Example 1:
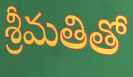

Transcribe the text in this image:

శ్రీమతితో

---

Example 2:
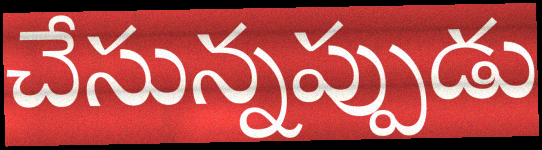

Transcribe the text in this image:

చేసున్నప్పుడు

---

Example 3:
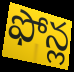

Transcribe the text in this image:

ఫోన్ల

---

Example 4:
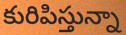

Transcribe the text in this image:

కురిపిస్తున్నా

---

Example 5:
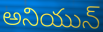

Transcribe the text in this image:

అనియున్